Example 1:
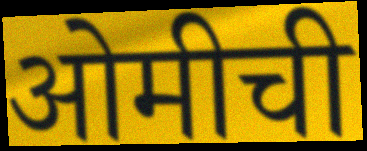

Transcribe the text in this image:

ओमीची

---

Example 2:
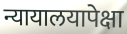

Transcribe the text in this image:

न्यायालयापेक्षा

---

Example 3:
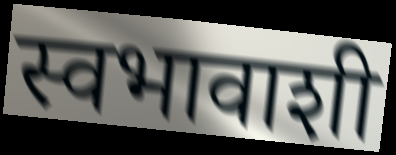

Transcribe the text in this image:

स्वभावाशी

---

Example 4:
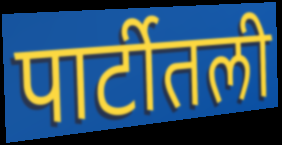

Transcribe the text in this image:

पार्टीतली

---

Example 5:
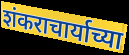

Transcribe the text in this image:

शंकराचार्याच्या